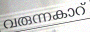
വരുന്നകാറ്